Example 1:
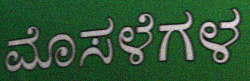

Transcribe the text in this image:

ಮೊಸಳೆಗಳ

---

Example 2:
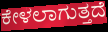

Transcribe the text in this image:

ಕೇಳಲಾಗುತ್ತದೆ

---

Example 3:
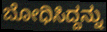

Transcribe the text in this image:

ಬೋಧಿಸಿದ್ದನ್ನು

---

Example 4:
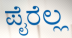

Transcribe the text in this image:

ಪೈರೆಲ್ಲ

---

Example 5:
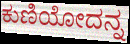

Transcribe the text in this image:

ಕುಣಿಯೋದನ್ನ